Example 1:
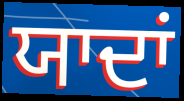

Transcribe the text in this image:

ਯਾਦਾਂ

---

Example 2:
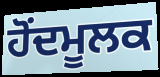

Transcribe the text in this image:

ਹੋਂਦਮੂਲਕ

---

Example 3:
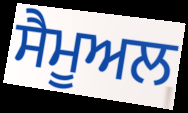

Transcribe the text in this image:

ਸੈਮੂਅਲ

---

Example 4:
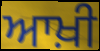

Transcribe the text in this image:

ਆਖ਼ੀ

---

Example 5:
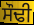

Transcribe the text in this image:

ਸੌਢੀ